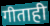
गीताही